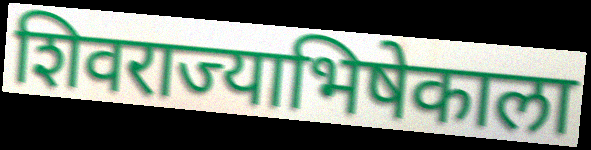
शिवराज्याभिषेकाला